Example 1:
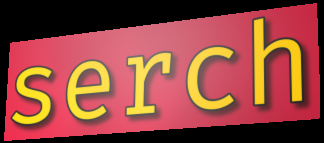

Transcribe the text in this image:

serch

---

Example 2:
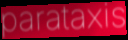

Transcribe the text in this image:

parataxis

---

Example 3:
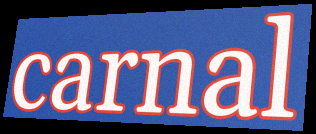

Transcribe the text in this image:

carnal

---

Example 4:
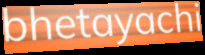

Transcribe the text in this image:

bhetayachi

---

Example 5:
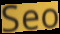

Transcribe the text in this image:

Seo